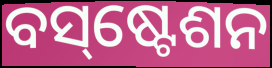
ବସ୍‌ଷ୍ଟେଶନ